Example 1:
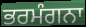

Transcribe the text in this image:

ਭਰਮੰਗਨਾ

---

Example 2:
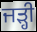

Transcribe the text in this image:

ਜੜ੍ਹੀ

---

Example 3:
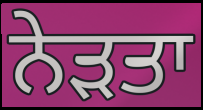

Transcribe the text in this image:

ਨੇੜਤਾ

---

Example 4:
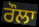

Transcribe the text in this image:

ਰੌਲਾ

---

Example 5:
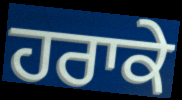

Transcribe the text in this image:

ਹਰਾਕੇ